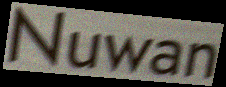
Nuwan